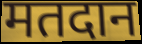
मतदान